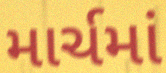
માર્ચમાં